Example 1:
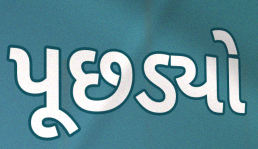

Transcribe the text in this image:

પૂછડ્યો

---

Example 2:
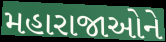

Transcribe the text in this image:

મહારાજાઓને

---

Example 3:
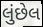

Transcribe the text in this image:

લુંછેલ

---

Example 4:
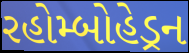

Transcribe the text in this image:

રહોમ્બોહેડ્રન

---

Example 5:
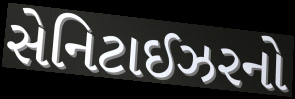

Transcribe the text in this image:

સેનિટાઈઝરનો